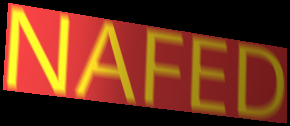
NAFED